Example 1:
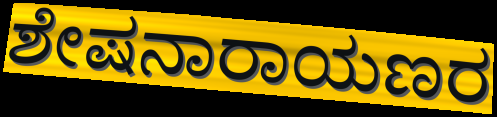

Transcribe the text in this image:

ಶೇಷನಾರಾಯಣರ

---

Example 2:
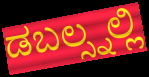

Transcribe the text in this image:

ಡಬಲ್ಸ್ನಲ್ಲಿ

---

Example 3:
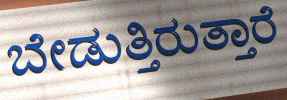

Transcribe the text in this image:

ಬೇಡುತ್ತಿರುತ್ತಾರೆ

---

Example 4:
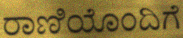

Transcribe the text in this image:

ರಾಣಿಯೊಂದಿಗೆ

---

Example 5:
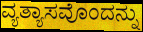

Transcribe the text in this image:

ವ್ಯತ್ಯಾಸವೊಂದನ್ನು